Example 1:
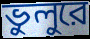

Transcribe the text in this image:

ভুলুরে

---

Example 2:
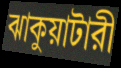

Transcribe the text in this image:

ঝাকুয়াটারী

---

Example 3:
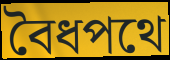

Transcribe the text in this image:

বৈধপথে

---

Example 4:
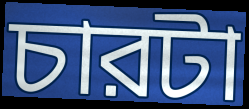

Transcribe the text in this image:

চারটা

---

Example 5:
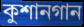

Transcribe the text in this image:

কুশানগান